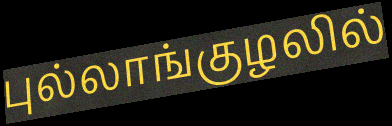
புல்லாங்குழலில்